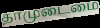
தாமுடைமை